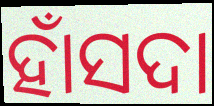
ହାଁସଦା